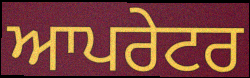
ਆਪਰੇਟਰ